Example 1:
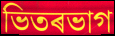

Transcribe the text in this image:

ভিতৰভাগ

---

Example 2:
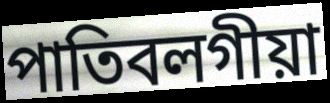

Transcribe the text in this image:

পাতিবলগীয়া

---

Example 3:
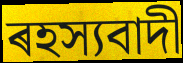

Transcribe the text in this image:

ৰহস্যবাদী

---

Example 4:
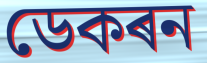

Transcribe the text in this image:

ডেকৰন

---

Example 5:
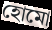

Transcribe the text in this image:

হোমো